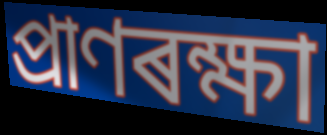
প্ৰাণৰক্ষা